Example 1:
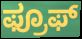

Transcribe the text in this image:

ಫ್ರೂಫ್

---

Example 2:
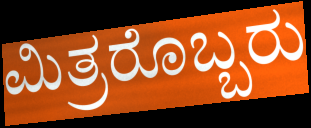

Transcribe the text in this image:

ಮಿತ್ರರೊಬ್ಬರು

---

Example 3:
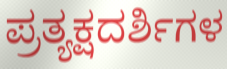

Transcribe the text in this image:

ಪ್ರತ್ಯಕ್ಷದರ್ಶಿಗಳ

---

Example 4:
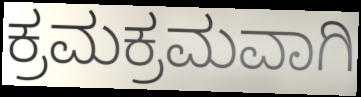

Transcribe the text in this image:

ಕ್ರಮಕ್ರಮವಾಗಿ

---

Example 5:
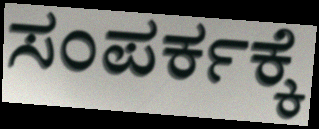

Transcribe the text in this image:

ಸಂಪರ್ಕಕ್ಕೆ